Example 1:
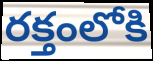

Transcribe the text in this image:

రక్తంలోకి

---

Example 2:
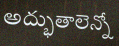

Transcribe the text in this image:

అద్భుతాలెన్నో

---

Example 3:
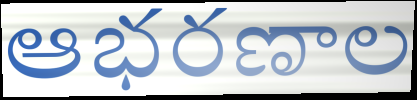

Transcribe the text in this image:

ఆభరణాల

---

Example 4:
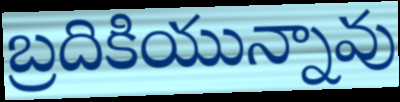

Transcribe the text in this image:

బ్రదికియున్నావు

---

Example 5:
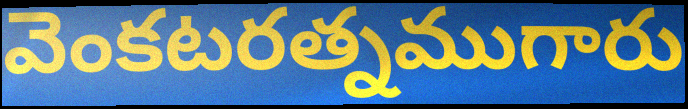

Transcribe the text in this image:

వెంకటరత్నముగారు